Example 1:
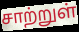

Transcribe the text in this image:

சாற்றுள்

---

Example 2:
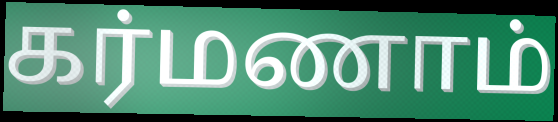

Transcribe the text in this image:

கர்மணாம்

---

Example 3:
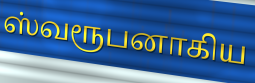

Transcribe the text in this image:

ஸ்வரூபனாகிய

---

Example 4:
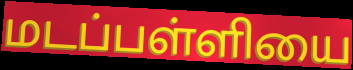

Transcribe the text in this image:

மடப்பள்ளியை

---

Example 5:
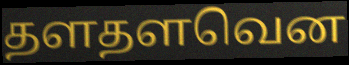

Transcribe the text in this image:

தளதளவென